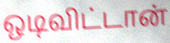
ஒடிவிட்டான்